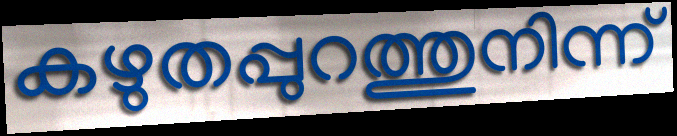
കഴുതപ്പുറത്തുനിന്ന്